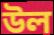
উল